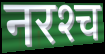
नरश्च